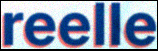
reelle